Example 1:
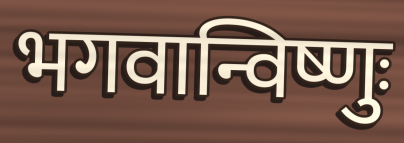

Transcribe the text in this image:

भगवान्विष्णुः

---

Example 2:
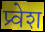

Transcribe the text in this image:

प्र्वेश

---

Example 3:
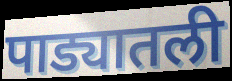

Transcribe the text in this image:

पाड्यातली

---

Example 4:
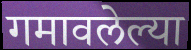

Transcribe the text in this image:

गमावलेल्या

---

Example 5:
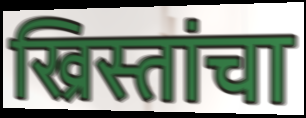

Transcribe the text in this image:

ख्रिस्तांचा